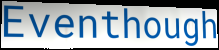
Eventhough